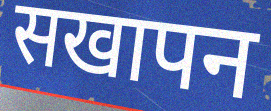
सखापन